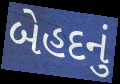
બેહદનું